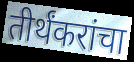
तीर्थंकरांचा